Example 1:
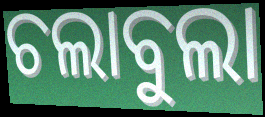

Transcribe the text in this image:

ଚଲାବୁଲା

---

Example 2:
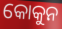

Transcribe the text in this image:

କୋକୁନ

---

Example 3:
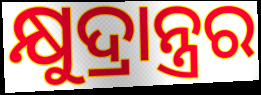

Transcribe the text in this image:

କ୍ଷୁଦ୍ରାନ୍ତ୍ରର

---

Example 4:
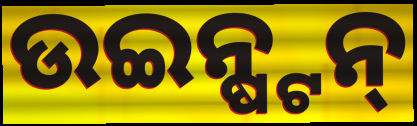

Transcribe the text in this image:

ଉଇନ୍ଷ୍ଟନ୍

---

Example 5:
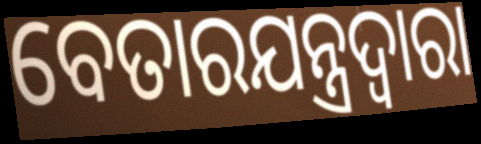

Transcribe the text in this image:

ବେତାରଯନ୍ତ୍ରଦ୍ୱାରା